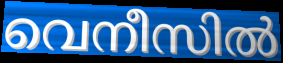
വെനീസിൽ